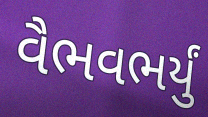
વૈભવભર્યું